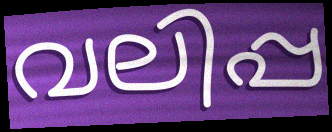
വലിപ്പ